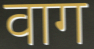
वाग